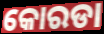
କୋରଡା